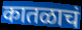
कातळाचं